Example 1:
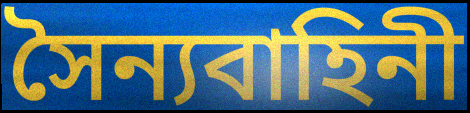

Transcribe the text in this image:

সৈন্যবাহিনী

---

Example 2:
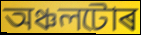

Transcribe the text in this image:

অঞ্চলটোৰ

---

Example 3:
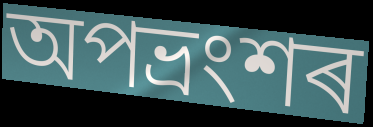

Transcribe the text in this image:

অপভ্ৰংশৰ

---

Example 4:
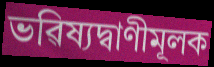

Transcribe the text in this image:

ভৱিষ্যদ্বাণীমূলক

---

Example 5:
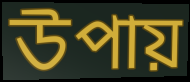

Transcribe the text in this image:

উপায়